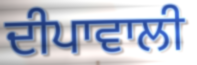
ਦੀਪਾਵਾਲੀ